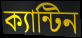
ক্যান্টিন